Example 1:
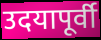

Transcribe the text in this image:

उदयापूर्वी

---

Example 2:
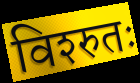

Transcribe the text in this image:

विश्रुतः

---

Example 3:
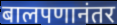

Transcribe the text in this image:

बालपणानंतर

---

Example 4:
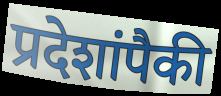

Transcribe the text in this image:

प्रदेशांपैकी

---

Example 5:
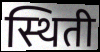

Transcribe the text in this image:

स्थिती